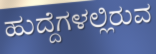
ಹುದ್ದೆಗಳಲ್ಲಿರುವ